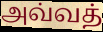
அவ்வத்